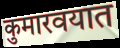
कुमारवयात